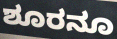
ಶೂರನೂ